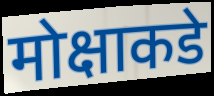
मोक्षाकडे